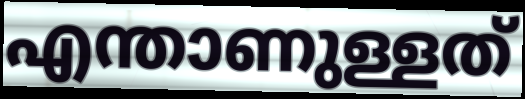
എന്താണുള്ളത്